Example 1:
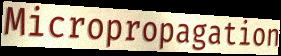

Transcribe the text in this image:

Micropropagation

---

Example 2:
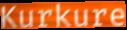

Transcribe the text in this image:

Kurkure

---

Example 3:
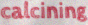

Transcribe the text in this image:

calcining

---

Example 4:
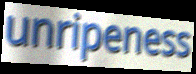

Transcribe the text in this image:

unripeness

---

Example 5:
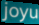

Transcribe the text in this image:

joyu